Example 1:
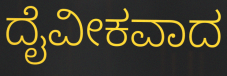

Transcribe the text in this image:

ದೈವೀಕವಾದ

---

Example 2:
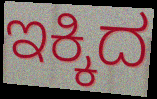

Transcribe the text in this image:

ಇಕ್ಕಿದ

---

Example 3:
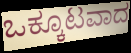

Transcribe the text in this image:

ಒಕ್ಕೂಟವಾದ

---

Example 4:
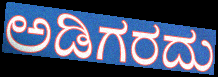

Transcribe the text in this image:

ಅಡಿಗರದು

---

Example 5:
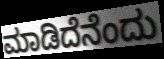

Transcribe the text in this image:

ಮಾಡಿದೆನೆಂದು